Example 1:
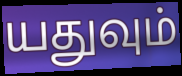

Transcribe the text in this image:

யதுவும்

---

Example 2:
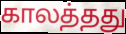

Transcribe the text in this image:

காலத்தது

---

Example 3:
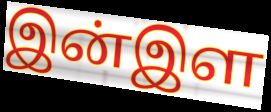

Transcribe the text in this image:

இன்இள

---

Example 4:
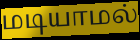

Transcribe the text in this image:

மடியாமல்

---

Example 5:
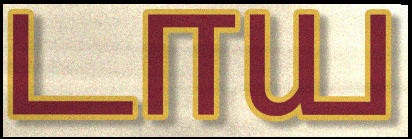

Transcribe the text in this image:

டாய